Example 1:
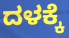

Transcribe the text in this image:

ದಳಕ್ಕೆ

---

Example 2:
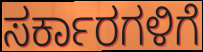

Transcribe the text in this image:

ಸರ್ಕಾರಗಳಿಗೆ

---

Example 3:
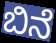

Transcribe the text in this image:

ಬಿನೆ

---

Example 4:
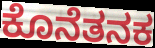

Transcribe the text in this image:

ಕೊನೆತನಕ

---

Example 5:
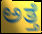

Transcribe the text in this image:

ಅತ್ತೆ